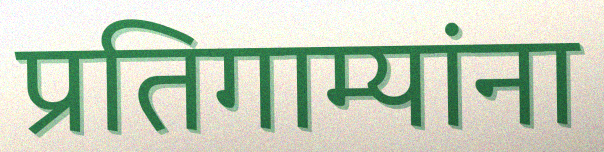
प्रतिगाम्यांना